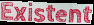
Existent